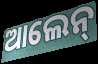
ଆଲେନ୍